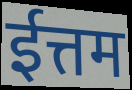
ईत्तम